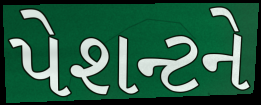
પેશન્ટને